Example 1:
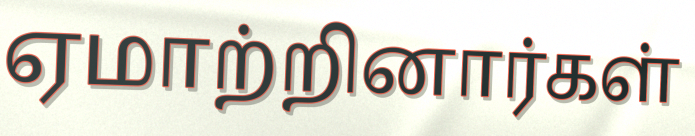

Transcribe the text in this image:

ஏமாற்றினார்கள்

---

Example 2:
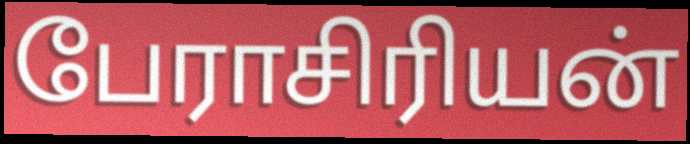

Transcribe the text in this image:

பேராசிரியன்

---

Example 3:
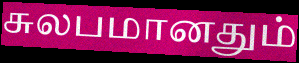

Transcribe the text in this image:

சுலபமானதும்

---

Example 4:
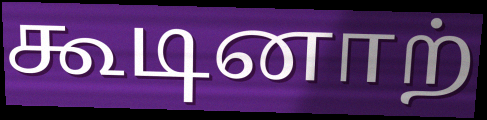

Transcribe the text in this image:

கூடினாற்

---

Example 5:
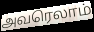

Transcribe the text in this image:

அவரெலாம்